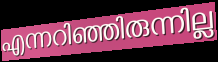
എന്നറിഞ്ഞിരുന്നില്ല